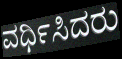
ವರ್ಧಿಸಿದರು